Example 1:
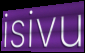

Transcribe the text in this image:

isivu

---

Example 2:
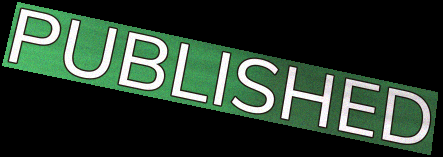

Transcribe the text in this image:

PUBLISHED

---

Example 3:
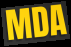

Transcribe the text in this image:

MDA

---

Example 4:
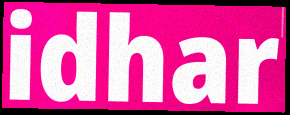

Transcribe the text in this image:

idhar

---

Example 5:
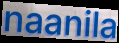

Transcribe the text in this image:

naanila